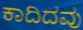
ಕಾದಿದವು